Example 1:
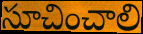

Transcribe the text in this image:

సూచించాలి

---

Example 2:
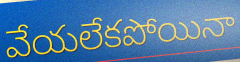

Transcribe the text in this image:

వేయలేకపోయినా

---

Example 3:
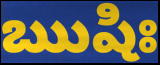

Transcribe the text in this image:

ఋషిః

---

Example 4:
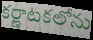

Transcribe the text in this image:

కర్ణాటకలోను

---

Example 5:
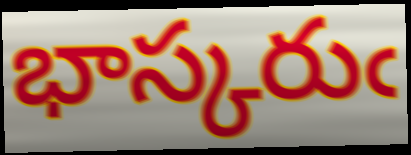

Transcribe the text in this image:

భాస్కరుఁ